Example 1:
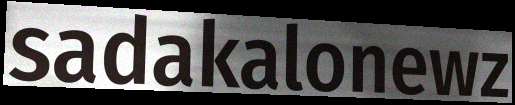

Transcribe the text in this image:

sadakalonewz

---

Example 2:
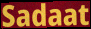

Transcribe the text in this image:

Sadaat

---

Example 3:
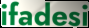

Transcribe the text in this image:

ifadesi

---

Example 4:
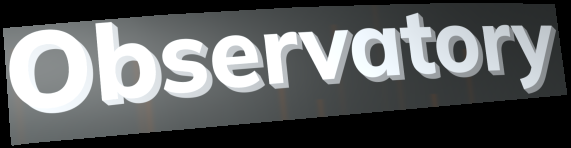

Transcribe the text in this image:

Observatory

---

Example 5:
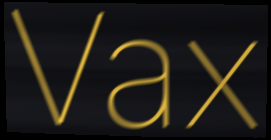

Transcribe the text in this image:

Vax